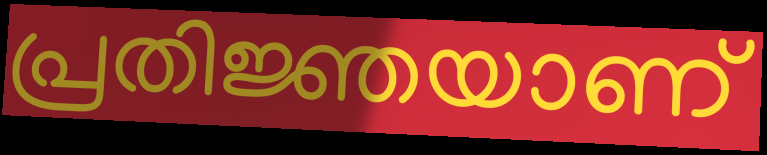
പ്രതിജ്ഞയാണ്